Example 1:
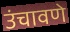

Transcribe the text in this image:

उंचावणे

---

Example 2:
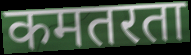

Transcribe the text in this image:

कमतरता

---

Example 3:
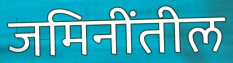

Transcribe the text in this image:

जमिनींतील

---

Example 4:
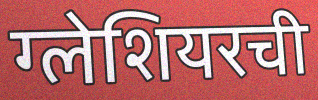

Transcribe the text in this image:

ग्लेशियरची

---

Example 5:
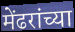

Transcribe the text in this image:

मेंढरांच्या